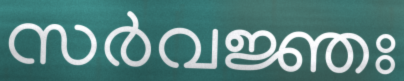
സർവജ്ഞഃ